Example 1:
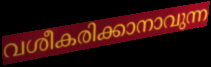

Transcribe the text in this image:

വശീകരിക്കാനാവുന്ന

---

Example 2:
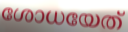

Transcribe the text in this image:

ശോധയേത്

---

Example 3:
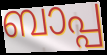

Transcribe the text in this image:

ബാപ്പ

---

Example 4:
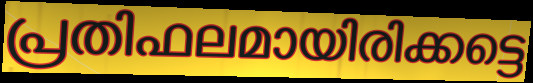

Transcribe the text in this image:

പ്രതിഫലമായിരിക്കട്ടെ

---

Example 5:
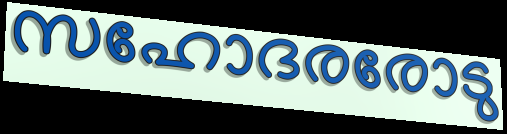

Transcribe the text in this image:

സഹോദരരോടു